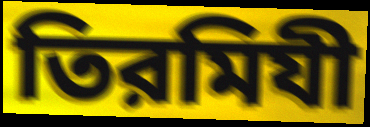
তিরমিযী